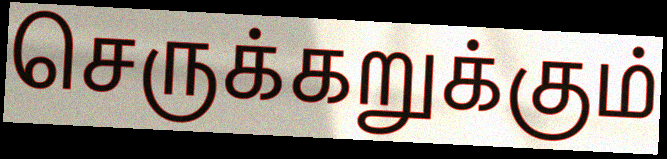
செருக்கறுக்கும்